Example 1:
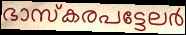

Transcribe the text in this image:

ഭാസ്കരപട്ടേലർ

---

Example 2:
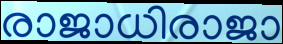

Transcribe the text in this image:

രാജാധിരാജാ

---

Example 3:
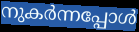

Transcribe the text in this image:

നുകർന്നപ്പോൾ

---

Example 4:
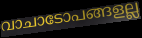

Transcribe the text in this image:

വാചാടോപങ്ങളല്ല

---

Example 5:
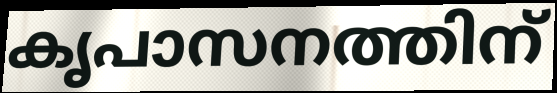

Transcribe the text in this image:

കൃപാസനത്തിന്